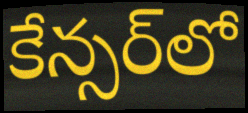
కేన్సర్‌లో